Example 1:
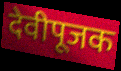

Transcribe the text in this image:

देवीपूजक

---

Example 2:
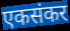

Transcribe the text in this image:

एकसंकर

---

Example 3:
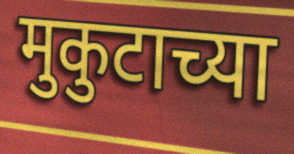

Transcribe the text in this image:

मुकुटाच्या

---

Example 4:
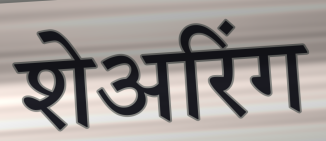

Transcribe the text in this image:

शेअरिंग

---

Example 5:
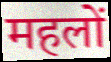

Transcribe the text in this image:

महलों